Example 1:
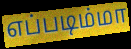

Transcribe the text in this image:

எப்படிம்மா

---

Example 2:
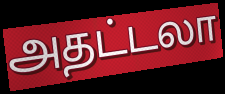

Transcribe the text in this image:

அதட்டலா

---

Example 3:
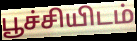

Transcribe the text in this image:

பூச்சியிடம்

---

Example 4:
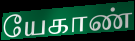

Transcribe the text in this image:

யேகாண்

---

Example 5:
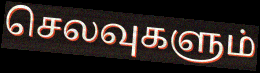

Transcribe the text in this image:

செலவுகளும்